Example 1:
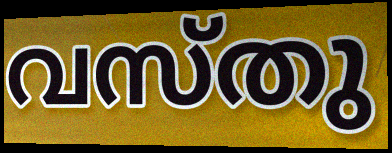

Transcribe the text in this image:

വസ്തു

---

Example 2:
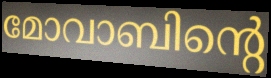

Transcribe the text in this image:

മോവാബിന്റെ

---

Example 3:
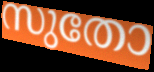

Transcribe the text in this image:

സുതോ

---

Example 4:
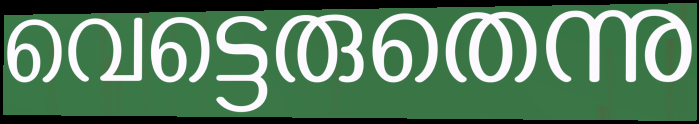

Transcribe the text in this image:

വെട്ടെരുതെന്നു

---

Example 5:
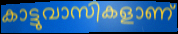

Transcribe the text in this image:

കാട്ടുവാസികളാണ്